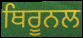
ਥਿਰੂਨਲ